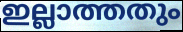
ഇല്ലാത്തതും